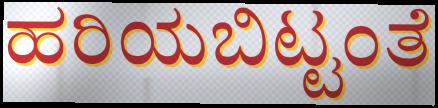
ಹರಿಯಬಿಟ್ಟಂತೆ